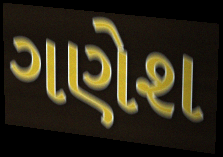
ગણેશ